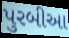
પુરબીઆ